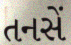
તનસેં